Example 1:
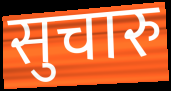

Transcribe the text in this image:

सुचारु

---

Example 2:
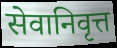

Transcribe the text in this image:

सेवानिवृत्त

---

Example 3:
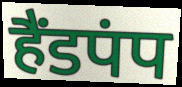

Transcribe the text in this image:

हैंडपंप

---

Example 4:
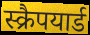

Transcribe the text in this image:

स्क्रैपयार्ड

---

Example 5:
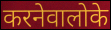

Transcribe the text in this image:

करनेवालोके